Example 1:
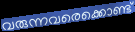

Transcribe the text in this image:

വരുന്നവരെക്കൊണ്ട്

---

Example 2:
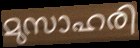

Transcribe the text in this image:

മുസാഹരി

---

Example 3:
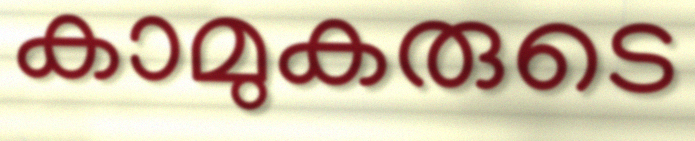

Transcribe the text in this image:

കാമുകരുടെ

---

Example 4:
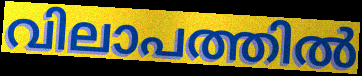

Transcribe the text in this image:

വിലാപത്തിൽ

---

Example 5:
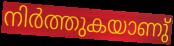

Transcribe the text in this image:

നിർത്തുകയാണു്